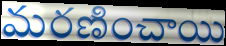
మరణించాయి